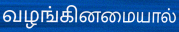
வழங்கினமையால்